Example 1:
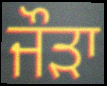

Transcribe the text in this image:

ਜੌੜਾ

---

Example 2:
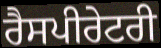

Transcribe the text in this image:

ਰੈਸਪੀਰੇਟਰੀ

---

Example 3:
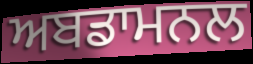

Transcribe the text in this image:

ਅਬਡਾਮਨਲ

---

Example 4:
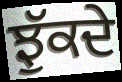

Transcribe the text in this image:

ਝੁੱਕਦੇ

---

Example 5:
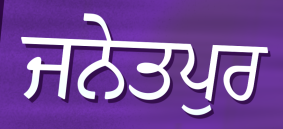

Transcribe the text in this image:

ਜਨੇਤਪੁਰ